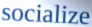
socialize